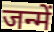
जन्में